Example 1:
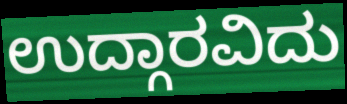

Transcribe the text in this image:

ಉದ್ಗಾರವಿದು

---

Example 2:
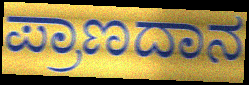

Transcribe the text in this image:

ಪ್ರಾಣದಾನ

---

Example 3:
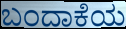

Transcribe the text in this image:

ಬಂದಾಕೆಯ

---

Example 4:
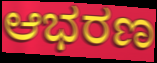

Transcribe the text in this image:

ಆಭರಣ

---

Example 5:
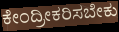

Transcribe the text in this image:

ಕೇಂದ್ರೀಕರಿಸಬೇಕು